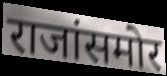
राजांसमोर